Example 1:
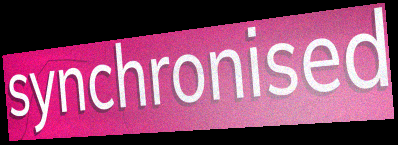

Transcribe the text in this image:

synchronised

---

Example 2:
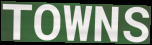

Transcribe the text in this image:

TOWNS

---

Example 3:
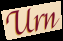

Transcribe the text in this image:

Urn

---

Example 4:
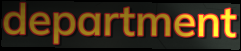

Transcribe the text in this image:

department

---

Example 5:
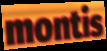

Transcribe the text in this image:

montis